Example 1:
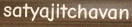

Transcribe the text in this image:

satyajitchavan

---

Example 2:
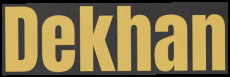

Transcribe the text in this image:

Dekhan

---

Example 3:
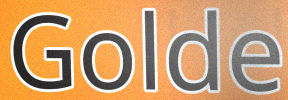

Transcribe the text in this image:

Golde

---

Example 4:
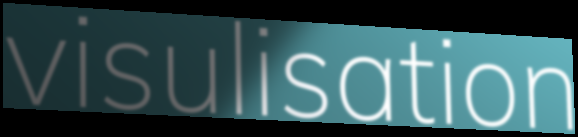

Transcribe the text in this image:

visulisation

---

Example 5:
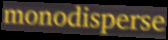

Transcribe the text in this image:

monodisperse